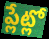
ప్లేట్లో